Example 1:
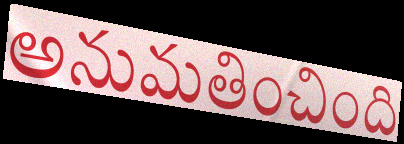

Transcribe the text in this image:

అనుమతించింది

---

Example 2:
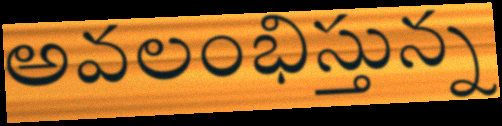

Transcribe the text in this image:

అవలంభిస్తున్న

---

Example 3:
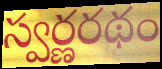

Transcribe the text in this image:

స్వర్ణరథం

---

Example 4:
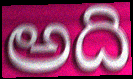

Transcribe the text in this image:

అది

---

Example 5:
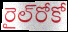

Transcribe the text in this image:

రైల్‌రోకో